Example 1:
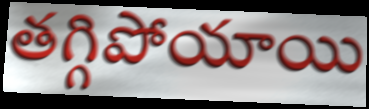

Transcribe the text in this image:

తగ్గిపోయాయి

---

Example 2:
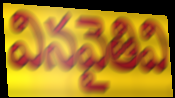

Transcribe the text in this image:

వినవైతివి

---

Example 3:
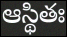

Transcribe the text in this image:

ఆస్థితః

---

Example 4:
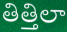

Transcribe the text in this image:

తిత్తిలా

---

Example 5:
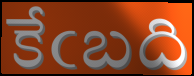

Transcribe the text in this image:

కేఁబది